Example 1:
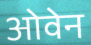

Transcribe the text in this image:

ओवेन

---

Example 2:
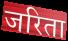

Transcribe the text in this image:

जरिता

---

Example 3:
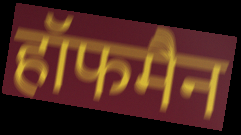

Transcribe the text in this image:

हॉफमैन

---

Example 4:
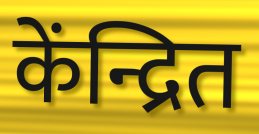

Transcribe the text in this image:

केंन्द्रित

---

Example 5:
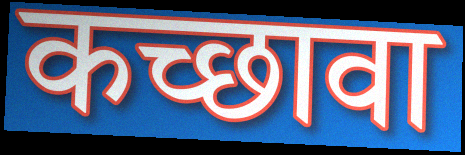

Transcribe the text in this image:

कच्छावा